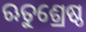
ଋତୁଶ୍ରେଷ୍ଠ